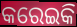
କରେଇକି